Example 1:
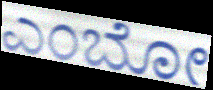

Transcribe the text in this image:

ಎಂಬೋ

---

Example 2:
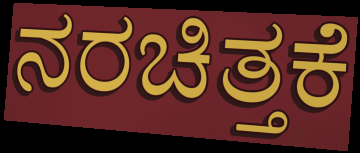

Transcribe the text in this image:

ನರಚಿತ್ತಕೆ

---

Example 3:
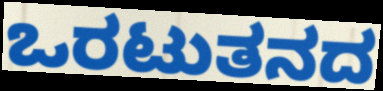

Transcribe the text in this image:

ಒರಟುತನದ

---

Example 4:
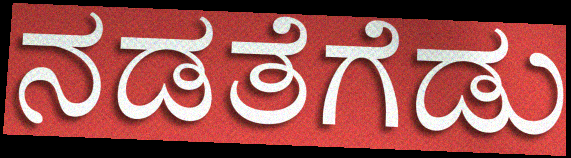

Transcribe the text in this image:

ನಡತೆಗೆಡು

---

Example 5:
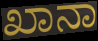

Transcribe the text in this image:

ಖಾನಾ